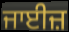
ਜਾਈਜ਼